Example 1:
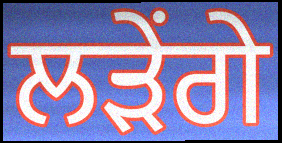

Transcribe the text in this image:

ਲੜੇਂਗੇ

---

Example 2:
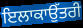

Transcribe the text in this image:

ਇਲਾਕਾਉੱਤਰੀ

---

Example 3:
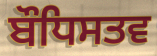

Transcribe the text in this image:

ਬੌਧਿਸਤਵ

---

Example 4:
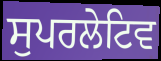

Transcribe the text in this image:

ਸੁਪਰਲੇਟਿਵ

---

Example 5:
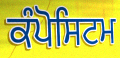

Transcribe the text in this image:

ਕੰਪੋਸਿਟਮ